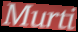
Murti